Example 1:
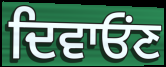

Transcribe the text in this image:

ਦਿਵਾਓੰਣ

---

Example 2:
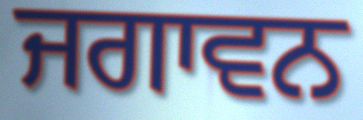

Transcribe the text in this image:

ਜਗਾਵਨ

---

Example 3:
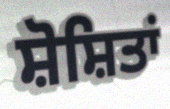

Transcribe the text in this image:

ਸ਼ੋਸ਼ਿਤਾਂ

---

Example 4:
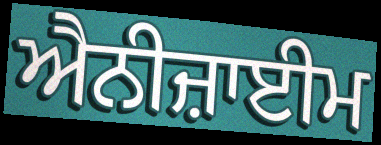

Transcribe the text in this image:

ਐਨੀਜ਼ਾਈਮ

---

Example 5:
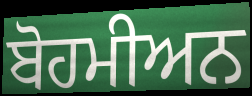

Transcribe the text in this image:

ਬੋਹਮੀਅਨ